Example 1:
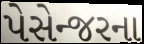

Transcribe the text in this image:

પેસેન્જરના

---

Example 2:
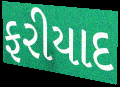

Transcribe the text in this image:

ફરીયાદ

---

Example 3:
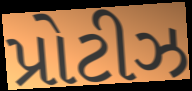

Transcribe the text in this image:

પ્રોટીઝ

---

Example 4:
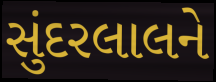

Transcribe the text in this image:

સુંદરલાલને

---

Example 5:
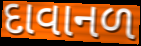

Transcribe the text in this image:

દાવાનળ